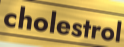
cholestrol